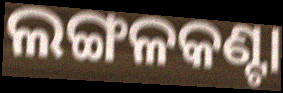
ଲଙ୍ଗଳକଣ୍ଟା